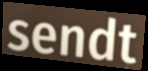
sendt